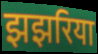
झझरिया